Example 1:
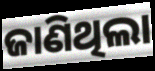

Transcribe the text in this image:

ଜାଣିଥିଲା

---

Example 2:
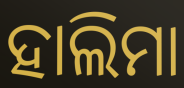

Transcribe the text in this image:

ହାଲିମା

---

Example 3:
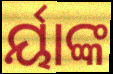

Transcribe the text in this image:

ର୍ୟାଙ୍କ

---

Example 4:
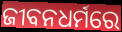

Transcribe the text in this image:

ଜୀବନଧର୍ମରେ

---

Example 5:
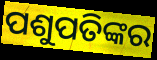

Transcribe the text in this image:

ପଶୁପତିଙ୍କର